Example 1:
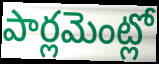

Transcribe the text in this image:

పార్లమెంట్లో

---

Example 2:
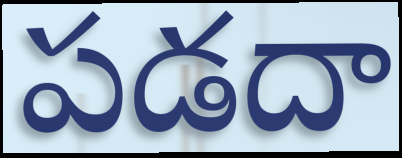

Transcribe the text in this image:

పడదా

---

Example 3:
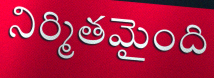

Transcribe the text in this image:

నిర్మితమైంది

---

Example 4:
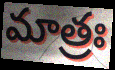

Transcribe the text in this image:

మాత్రః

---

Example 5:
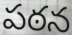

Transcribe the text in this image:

పఠన